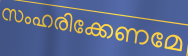
സംഹരിക്കേണമേ